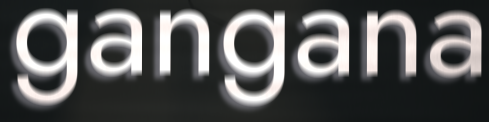
gangana